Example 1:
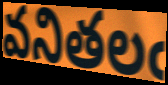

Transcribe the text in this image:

వనితలఁ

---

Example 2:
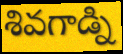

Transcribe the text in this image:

శివగాడ్ని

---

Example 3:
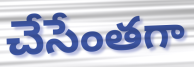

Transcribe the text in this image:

చేసేంతగా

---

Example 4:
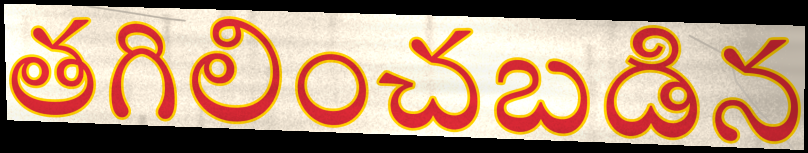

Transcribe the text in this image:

తగిలించబడిన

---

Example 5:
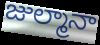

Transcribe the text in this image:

జుల్మానా